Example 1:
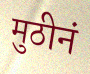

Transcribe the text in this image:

मुठीनं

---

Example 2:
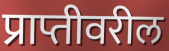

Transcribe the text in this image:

प्राप्तीवरील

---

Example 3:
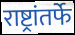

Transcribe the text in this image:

राष्ट्रांतर्फे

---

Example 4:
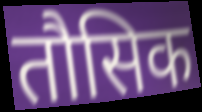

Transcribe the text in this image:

तौसिक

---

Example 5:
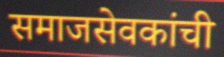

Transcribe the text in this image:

समाजसेवकांची